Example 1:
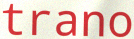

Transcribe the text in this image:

trano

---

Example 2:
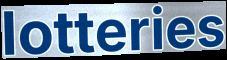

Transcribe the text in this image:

lotteries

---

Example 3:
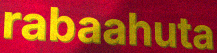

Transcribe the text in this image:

rabaahuta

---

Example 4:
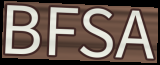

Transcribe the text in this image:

BFSA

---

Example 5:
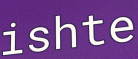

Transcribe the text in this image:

ishte